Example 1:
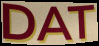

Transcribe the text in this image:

DAT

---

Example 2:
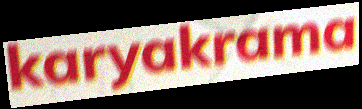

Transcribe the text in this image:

karyakrama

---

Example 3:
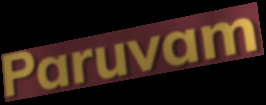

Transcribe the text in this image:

Paruvam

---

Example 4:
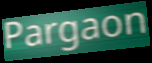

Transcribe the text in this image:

Pargaon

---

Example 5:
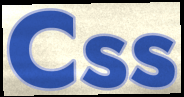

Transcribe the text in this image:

Css